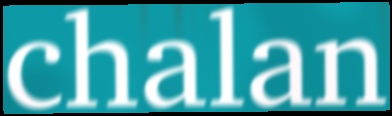
chalan